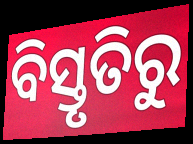
ବିସ୍ତୃତିରୁ